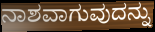
ನಾಶವಾಗುವುದನ್ನು